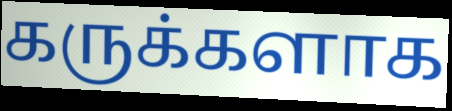
கருக்களாக